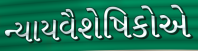
ન્યાયવૈશેષિકોએ